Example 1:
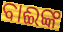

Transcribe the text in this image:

ବାଈଙ୍କ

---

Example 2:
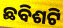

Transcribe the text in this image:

ଛବିଶଟି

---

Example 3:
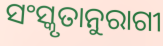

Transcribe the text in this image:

ସଂସ୍କୃତାନୁରାଗୀ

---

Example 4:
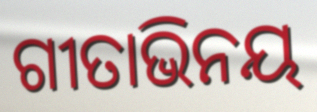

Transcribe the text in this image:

ଗୀତାଭିନୟ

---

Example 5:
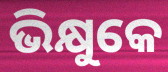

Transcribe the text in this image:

ଭିକ୍ଷୁକେ